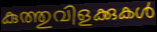
കുത്തുവിളക്കുകൾ